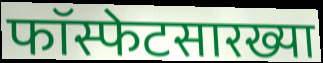
फॉस्फेटसारख्या